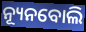
ନ୍ୟୂନବୋଲି